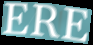
ERE